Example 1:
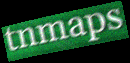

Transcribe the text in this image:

tnmaps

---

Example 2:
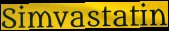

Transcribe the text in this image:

Simvastatin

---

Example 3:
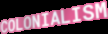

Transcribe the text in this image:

COLONIALISM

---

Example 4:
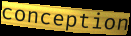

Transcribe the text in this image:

conception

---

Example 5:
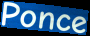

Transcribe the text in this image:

Ponce